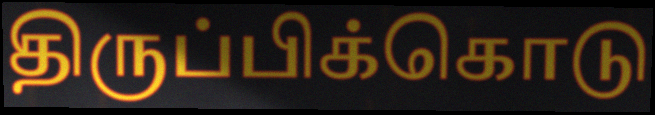
திருப்பிக்கொடு